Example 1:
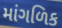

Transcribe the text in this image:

માંગળિક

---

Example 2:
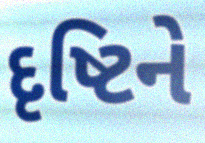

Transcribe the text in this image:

દૃષ્ટિને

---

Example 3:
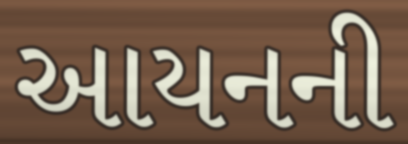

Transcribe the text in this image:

આયનની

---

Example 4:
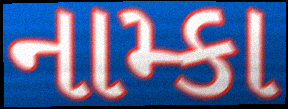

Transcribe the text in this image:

નામ્કા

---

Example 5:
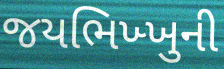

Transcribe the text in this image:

જયભિખ્ખુની